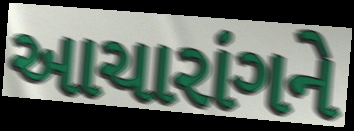
આચારાંગને